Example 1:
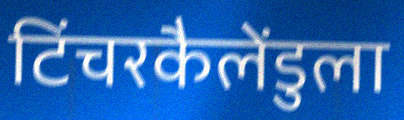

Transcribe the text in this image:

टिंचरकैलेंडुला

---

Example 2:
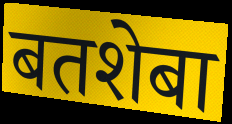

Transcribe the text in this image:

बतशेबा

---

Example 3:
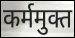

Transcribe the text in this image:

कर्ममुक्त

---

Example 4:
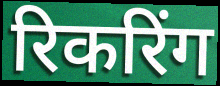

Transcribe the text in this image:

रिकरिंग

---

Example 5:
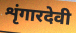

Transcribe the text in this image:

शृंगारदेवी